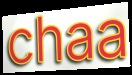
chaa